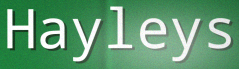
Hayleys